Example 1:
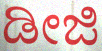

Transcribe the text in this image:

ಡೀಜಿ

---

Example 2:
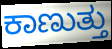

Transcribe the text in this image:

ಕಾಣುತ್ತು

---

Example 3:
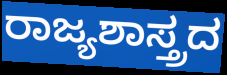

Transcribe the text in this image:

ರಾಜ್ಯಶಾಸ್ತ್ರದ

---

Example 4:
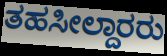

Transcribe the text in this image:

ತಹಸೀಲ್ದಾರರು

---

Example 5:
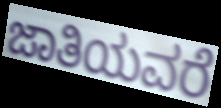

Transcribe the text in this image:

ಜಾತಿಯವರೆ